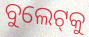
ବୁଲେଟ୍‌କୁ